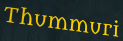
Thummuri